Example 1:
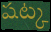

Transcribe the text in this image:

షట్క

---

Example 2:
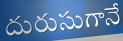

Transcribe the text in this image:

దురుసుగానే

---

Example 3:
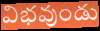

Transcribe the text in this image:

విభవుండు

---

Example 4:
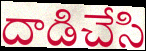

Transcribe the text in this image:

దాడిచేసి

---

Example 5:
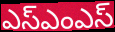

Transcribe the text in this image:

ఎస్ఎంఎస్